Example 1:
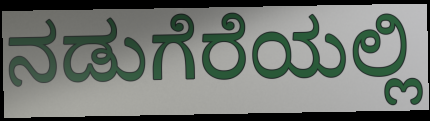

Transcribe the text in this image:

ನಡುಗೆರೆಯಲ್ಲಿ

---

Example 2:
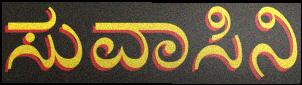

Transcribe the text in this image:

ಸುವಾಸಿನಿ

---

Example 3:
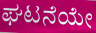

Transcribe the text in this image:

ಘಟನೆಯೇ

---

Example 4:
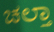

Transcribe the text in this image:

ಚಲ್ತಾ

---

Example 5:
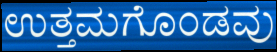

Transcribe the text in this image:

ಉತ್ತಮಗೊಂಡವು